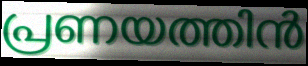
പ്രണയത്തിൻ